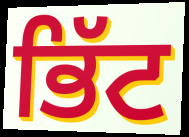
ਭਿੱਟ